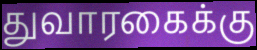
துவாரகைக்கு